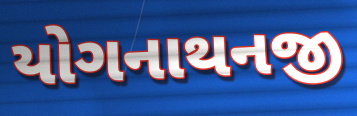
યોગનાથનજી